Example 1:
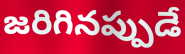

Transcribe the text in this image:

జరిగినప్పుడే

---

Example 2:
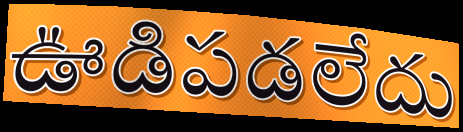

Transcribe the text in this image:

ఊడిపడలేదు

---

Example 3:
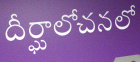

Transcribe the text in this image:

దీర్ఘాలోచనలో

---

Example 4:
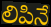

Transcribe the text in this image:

లిపినే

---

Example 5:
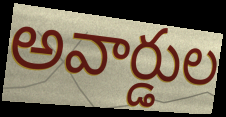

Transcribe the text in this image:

అవార్డుల